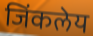
जिंकलेय